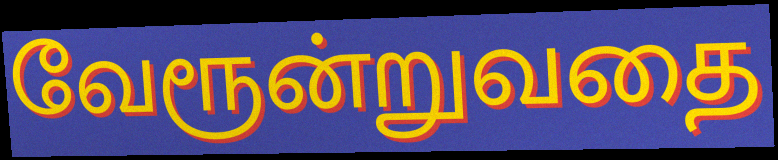
வேரூன்றுவதை